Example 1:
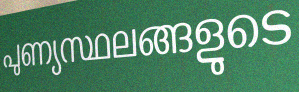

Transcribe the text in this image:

പുണ്യസ്ഥലങ്ങളുടെ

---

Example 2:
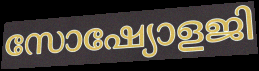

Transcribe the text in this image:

സോഷ്യോളജി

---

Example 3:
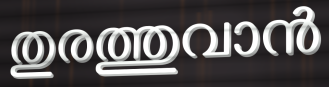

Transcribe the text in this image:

തുരത്തുവാൻ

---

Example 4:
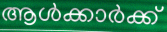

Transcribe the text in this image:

ആൾക്കാർക്ക്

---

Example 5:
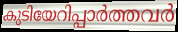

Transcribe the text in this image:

കുടിയേറിപ്പാർത്തവർ